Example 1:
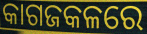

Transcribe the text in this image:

କାଗଜକଳରେ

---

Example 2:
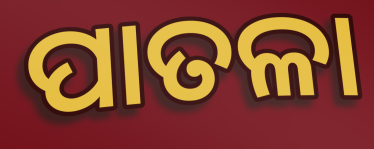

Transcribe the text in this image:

ପାତଳା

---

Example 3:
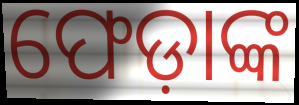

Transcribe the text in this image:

ଫେଡ଼ାଙ୍କ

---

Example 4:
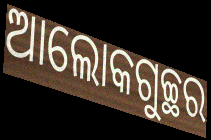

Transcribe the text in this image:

ଆଲୋକଗୁଚ୍ଛର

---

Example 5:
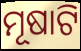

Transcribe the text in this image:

ମୂଷାଟି